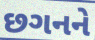
છગનને